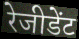
रेजीडेंट